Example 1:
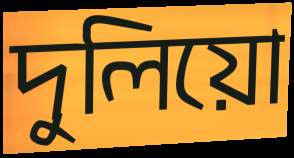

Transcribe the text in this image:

দুলিয়ো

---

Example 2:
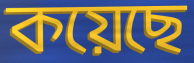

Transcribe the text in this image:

কয়েছে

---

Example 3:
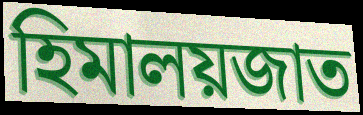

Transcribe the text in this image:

হিমালয়জাত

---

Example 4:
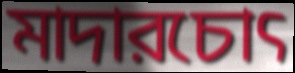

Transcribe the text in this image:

মাদারচোৎ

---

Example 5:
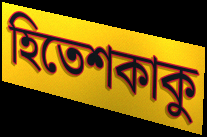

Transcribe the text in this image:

হিতেশকাকু